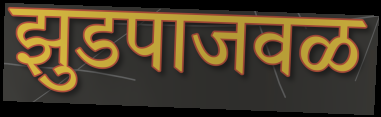
झुडपाजवळ